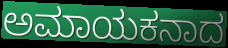
ಅಮಾಯಕನಾದ